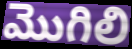
మొగిలి